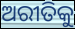
ଅରୀତିକୁ